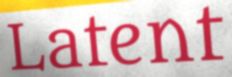
Latent